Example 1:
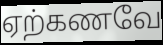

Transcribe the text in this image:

ஏற்கணவே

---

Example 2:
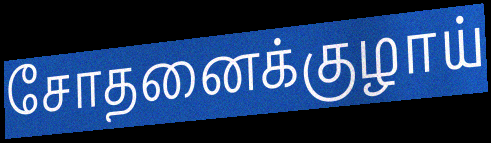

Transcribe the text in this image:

சோதனைக்குழாய்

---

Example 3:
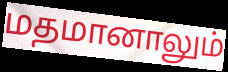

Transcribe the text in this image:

மதமானாலும்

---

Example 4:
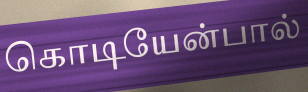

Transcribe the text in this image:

கொடியேன்பால்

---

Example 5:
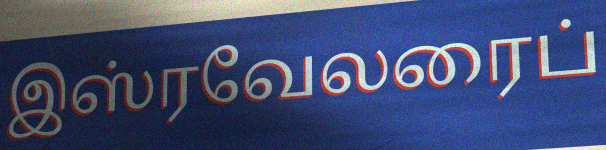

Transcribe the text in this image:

இஸ்ரவேலரைப்